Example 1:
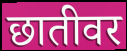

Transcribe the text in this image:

छातीवर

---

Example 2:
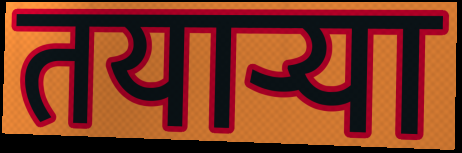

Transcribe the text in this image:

तयाऱ्या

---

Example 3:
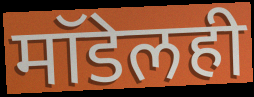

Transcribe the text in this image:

मॉडेलही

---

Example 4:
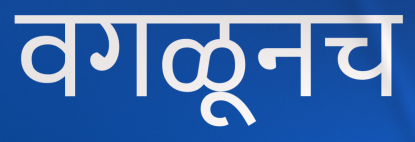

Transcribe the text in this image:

वगळूनच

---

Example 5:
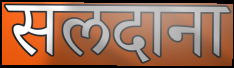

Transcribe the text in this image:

सलदाना